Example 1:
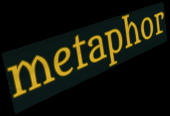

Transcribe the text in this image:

metaphor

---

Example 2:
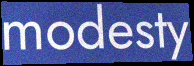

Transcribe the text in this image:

modesty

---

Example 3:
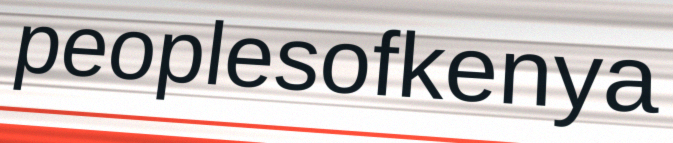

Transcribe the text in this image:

peoplesofkenya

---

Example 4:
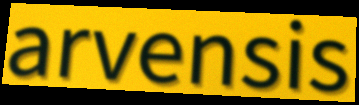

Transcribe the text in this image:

arvensis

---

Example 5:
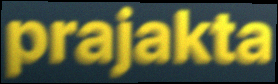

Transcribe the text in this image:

prajakta